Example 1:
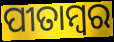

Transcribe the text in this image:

ପୀତାମ୍ବର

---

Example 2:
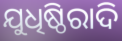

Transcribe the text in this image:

ଯୁଧିଷ୍ଠିରାଦି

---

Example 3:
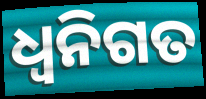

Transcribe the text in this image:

ଧ୍ଵନିଗତ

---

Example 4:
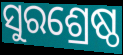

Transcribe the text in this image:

ସୁରଶ୍ରେଷ୍ଠ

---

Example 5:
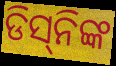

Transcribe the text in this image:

ଡିସ୍‌ନିଙ୍କ